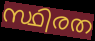
സ്ഥിരത